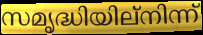
സമൃദ്ധിയില്നിന്ന്